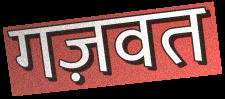
गज़वत